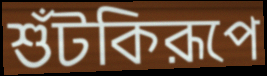
শুঁটকিরূপে